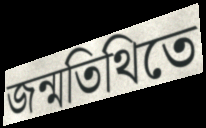
জন্মতিথিতে